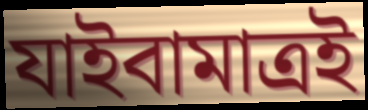
যাইবামাত্রই